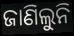
ଜାଣିଲୁନି